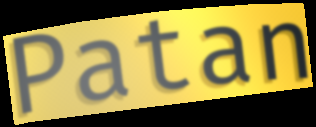
Patan